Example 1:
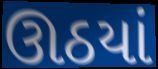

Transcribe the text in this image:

ઊઠયાં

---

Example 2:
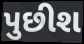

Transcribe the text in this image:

પુછીશ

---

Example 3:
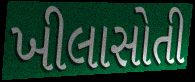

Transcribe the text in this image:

ખીલાસોતી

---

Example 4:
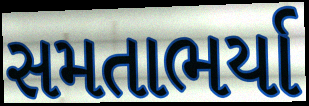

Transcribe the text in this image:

સમતાભર્યા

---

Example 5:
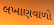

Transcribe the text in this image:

લખાણવાળો